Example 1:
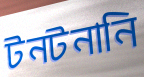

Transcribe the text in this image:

টনটনানি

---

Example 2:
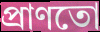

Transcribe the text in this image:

প্রাণতো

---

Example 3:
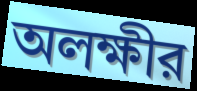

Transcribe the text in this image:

অলক্ষীর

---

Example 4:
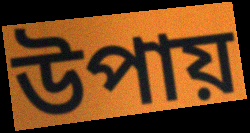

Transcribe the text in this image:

উপায়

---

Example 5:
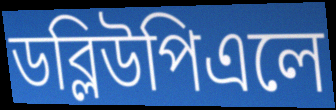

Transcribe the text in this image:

ডব্লিউপিএলে